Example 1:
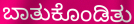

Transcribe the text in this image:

ಬಾತುಕೊಂಡಿತು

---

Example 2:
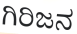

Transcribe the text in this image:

ಗಿರಿಜನ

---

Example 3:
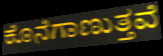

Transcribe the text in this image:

ಕೊನೆಗಾಣುತ್ತವೆ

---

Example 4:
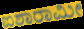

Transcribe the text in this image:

ಐಶಾರಾಮೀ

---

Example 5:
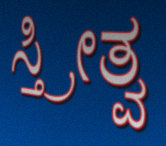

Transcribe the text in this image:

ಸ್ತ್ರೀತ್ವ